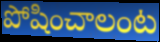
పోషించాలంట